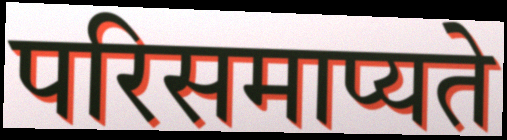
परिसमाप्यते